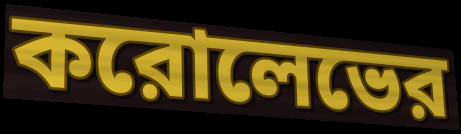
করোলেভের